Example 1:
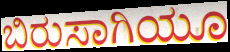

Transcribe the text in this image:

ಬಿರುಸಾಗಿಯೂ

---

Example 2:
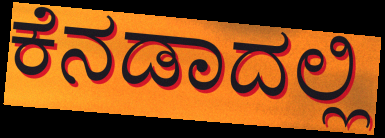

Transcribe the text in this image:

ಕೆನಡಾದಲ್ಲಿ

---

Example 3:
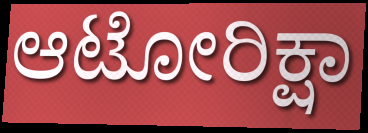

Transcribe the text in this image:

ಆಟೋರಿಕ್ಷಾ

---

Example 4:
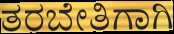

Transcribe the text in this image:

ತರಬೇತಿಗಾಗಿ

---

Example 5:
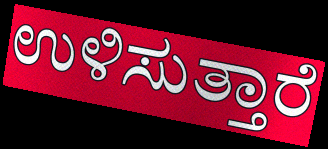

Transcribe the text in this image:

ಉಳಿಸುತ್ತಾರೆ